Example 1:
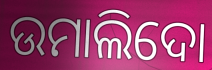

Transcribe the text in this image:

ଉମାଲିଦୋ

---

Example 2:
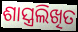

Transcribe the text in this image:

ଶାସ୍ତ୍ରଲିଖିତ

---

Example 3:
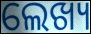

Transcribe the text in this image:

ଲେଖ୍ୟ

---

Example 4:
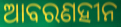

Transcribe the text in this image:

ଆବରଣହୀନ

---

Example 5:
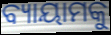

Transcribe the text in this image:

ବ୍ୟାୟାମକୁ